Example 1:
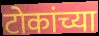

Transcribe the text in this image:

टोकांच्या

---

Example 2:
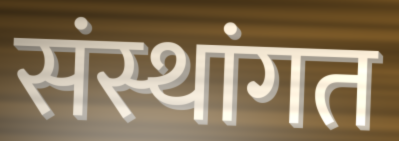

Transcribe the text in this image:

संस्थांगत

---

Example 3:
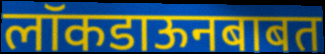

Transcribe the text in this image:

लॉकडाऊनबाबत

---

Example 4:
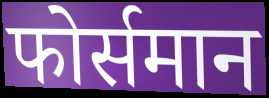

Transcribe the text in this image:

फोर्समान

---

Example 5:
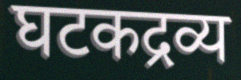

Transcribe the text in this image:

घटकद्रव्य